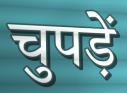
चुपड़ें